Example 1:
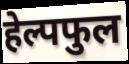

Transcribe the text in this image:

हेल्पफुल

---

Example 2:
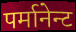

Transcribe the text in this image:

पर्मानेन्ट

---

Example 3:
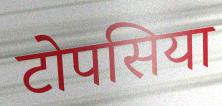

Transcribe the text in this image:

टोपसिया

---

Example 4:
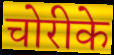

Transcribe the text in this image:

चोरीके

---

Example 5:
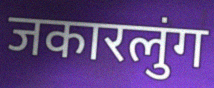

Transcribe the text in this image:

जकारलुंग